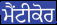
ਮੈਂਟੀਕੋਰ